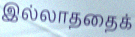
இல்லாததைக்